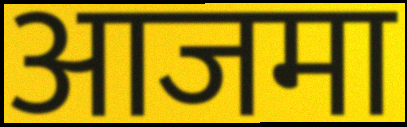
आजमा